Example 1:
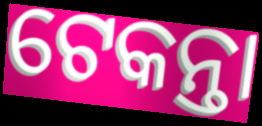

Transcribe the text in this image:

ଟେକନ୍ତା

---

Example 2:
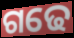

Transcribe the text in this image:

ଗଢେ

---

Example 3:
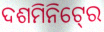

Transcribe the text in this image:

ଦଶମିନିଟ୍‍ରେ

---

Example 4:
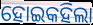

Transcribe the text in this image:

ହୋଇକହିଲା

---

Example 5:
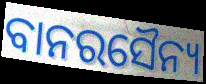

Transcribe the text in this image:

ବାନରସୈନ୍ୟ